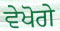
ਵੇਖੋਗੇ